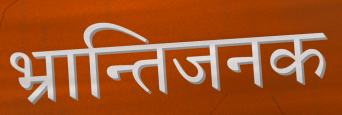
भ्रान्तिजनक